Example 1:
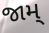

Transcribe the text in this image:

જામ્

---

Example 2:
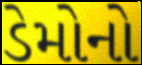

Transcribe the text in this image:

ડેમોનો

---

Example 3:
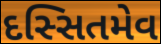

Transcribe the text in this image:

દસ્સિતમેવ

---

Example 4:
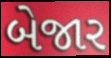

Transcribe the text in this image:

બેજાર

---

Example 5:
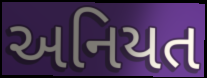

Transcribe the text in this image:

અનિયત